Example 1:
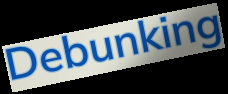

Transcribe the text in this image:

Debunking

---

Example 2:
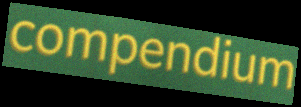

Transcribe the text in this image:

compendium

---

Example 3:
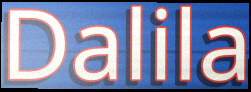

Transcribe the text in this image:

Dalila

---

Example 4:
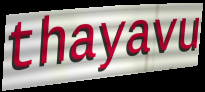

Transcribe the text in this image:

thayavu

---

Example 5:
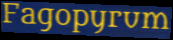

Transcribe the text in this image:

Fagopyrum